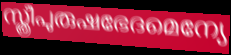
സ്ത്രീപുരുഷഭേദമെന്യേ